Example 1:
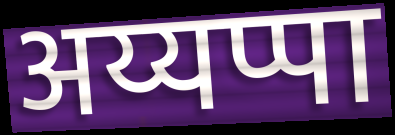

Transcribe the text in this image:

अय्यप्पा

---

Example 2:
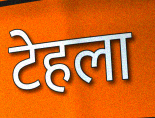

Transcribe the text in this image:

टेहला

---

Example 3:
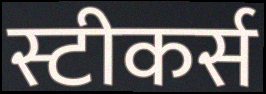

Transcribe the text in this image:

स्टीकर्स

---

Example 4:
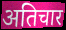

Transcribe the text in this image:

अतिचार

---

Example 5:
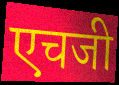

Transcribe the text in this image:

एचजी